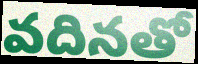
వదినతో